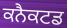
ਕਨੈਕਟਡ